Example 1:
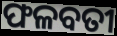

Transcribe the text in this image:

ଫଳବତୀ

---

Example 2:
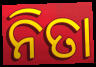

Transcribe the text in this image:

ନିତା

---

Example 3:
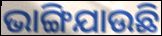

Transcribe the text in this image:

ଭାଙ୍ଗିଯାଉଛି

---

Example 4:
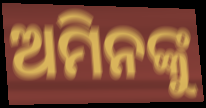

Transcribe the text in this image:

ଅମିନଙ୍କୁ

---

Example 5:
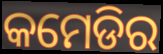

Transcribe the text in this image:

କମେଡିର